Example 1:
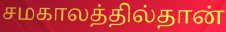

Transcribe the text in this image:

சமகாலத்தில்தான்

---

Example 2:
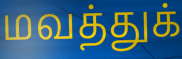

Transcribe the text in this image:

மவத்துக்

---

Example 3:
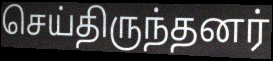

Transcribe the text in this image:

செய்திருந்தனர்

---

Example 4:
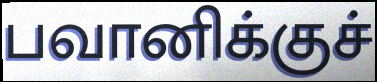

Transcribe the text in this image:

பவானிக்குச்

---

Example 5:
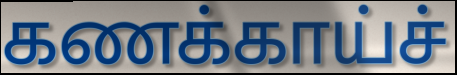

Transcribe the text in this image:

கணக்காய்ச்